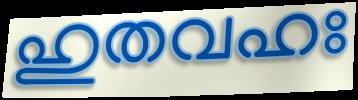
ഹുതവഹഃ